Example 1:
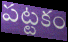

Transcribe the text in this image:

పట్టకం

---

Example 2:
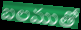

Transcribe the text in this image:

బలముతో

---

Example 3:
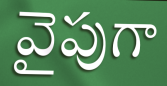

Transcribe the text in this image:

వైపుగా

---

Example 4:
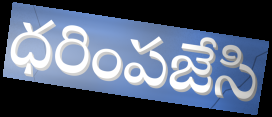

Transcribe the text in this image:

ధరింపజేసి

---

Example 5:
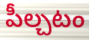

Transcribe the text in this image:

పీల్చటం